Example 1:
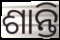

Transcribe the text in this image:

ଶାନ୍ତି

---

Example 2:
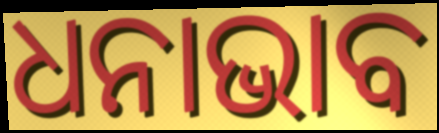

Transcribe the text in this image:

ଧନାଭାବ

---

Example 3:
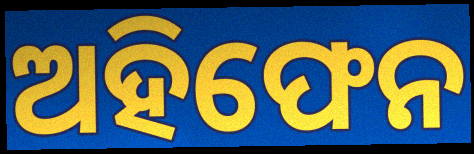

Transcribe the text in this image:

ଅହିଫେନ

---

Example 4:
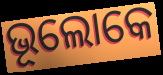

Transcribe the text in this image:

ଭୂଲୋକେ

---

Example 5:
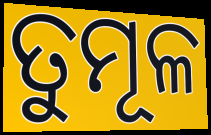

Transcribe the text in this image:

ତୁମୂଳ